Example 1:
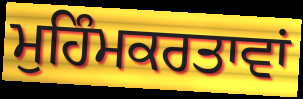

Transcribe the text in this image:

ਮੁਹਿੰਮਕਰਤਾਵਾਂ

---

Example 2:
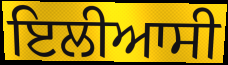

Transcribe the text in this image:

ਇਲੀਆਸੀ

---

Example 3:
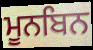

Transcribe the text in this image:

ਮੂਨਬਿਨ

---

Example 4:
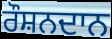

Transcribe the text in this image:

ਰੌਸ਼ਨਦਾਨ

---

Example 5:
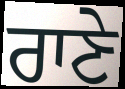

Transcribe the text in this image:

ਰਾਣੇ